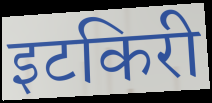
इटकिरी